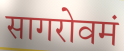
सागरोवमं